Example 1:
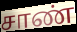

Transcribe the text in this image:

சாண்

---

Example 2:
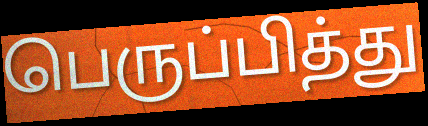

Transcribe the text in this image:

பெருப்பித்து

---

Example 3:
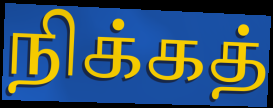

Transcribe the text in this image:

நிக்கத்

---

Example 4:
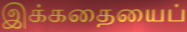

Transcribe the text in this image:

இக்கதையைப்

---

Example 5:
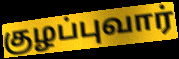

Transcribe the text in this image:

குழப்புவார்